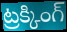
ట్రక్కింగ్